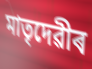
মাতৃদেৱীৰ